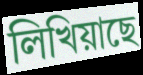
লিখিয়াছে